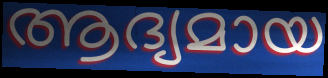
ആദ്യമായ